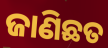
ଜାଣିଛତ